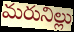
మరునిల్లు